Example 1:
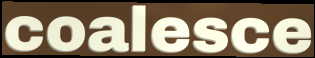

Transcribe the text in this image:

coalesce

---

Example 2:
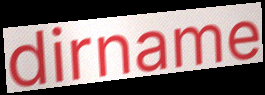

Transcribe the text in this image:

dirname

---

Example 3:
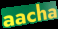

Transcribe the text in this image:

aacha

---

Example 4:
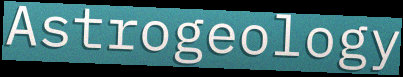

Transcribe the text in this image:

Astrogeology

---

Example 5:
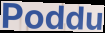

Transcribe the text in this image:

Poddu